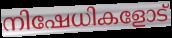
നിഷേധികളോട്